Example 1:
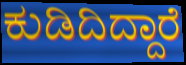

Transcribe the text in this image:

ಕುಡಿದಿದ್ದಾರೆ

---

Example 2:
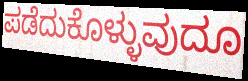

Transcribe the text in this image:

ಪಡೆದುಕೊಳ್ಳುವುದೂ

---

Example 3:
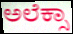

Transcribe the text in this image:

ಅಲೆಕ್ಸಾ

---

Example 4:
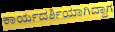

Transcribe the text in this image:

ಕಾರ್ಯದರ್ಶಿಯಾಗಿದ್ದಾಗ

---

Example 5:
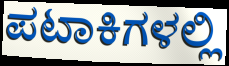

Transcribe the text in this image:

ಪಟಾಕಿಗಳಲ್ಲಿ